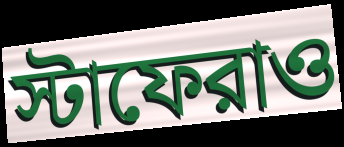
স্টাফেরাও